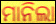
ମାନିଲା